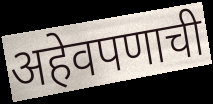
अहेवपणाची